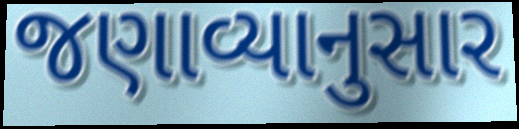
જણાવ્યાનુસાર